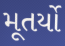
મૂતર્યો